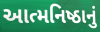
આત્મનિષ્ઠાનું